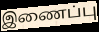
இணைப்பு